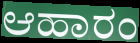
ಆಹಾರಂ